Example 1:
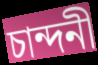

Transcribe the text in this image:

চান্দনী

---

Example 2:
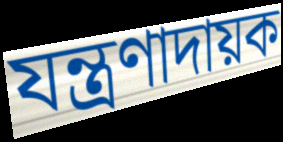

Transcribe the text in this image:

যন্ত্রণাদায়ক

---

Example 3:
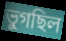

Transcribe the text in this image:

ভুগছিল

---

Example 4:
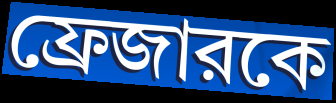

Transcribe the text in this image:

ফ্রেজারকে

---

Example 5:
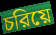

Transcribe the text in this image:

চরিয়ে